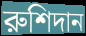
রুশিদান